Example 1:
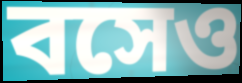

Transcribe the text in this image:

বসেও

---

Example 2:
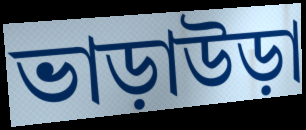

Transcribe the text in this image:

ভাড়াউড়া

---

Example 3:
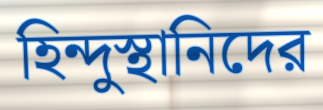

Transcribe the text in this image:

হিন্দুস্থানিদের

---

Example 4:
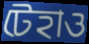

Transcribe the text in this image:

টেহাও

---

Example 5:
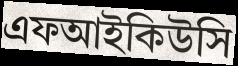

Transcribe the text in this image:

এফআইকিউসি